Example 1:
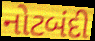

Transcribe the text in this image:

નોટબંદી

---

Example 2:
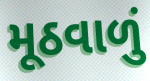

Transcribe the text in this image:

મૂઠવાળું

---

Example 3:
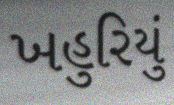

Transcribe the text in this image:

ખહુરિયું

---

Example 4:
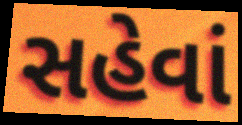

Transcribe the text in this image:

સહેવાં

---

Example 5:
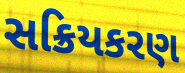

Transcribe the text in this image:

સક્રિયકરણ